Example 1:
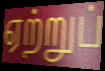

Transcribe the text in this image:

ஏற்றுப்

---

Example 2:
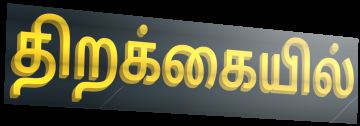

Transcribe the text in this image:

திறக்கையில்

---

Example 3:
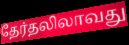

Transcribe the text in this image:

தேர்தலிலாவது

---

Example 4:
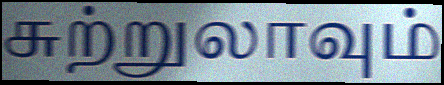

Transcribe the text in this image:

சுற்றுலாவும்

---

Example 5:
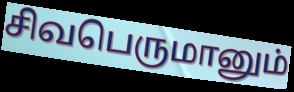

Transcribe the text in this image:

சிவபெருமானும்